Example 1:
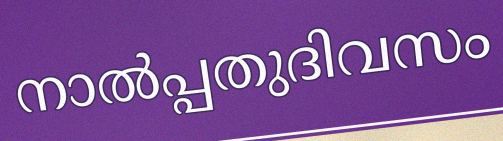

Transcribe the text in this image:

നാൽപ്പതുദിവസം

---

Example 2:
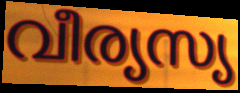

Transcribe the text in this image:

വീര്യസ്യ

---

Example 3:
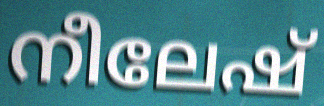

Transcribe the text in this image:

നീലേഷ്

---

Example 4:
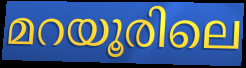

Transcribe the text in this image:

മറയൂരിലെ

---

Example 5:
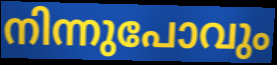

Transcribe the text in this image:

നിന്നുപോവും